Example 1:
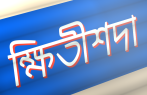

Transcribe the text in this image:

ক্ষিতীশদা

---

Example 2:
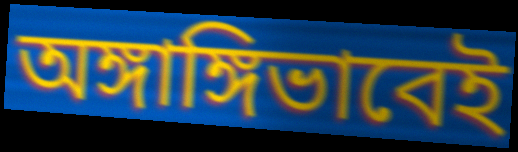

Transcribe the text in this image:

অঙ্গাঙ্গিভাবেই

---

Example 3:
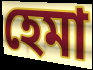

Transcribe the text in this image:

হেমা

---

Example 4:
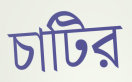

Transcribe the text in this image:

চাটির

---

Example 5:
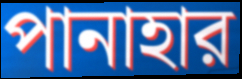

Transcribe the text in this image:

পানাহার